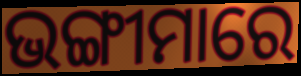
ଭଙ୍ଗୀମାରେ